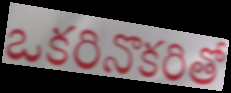
ఒకరినొకరితో